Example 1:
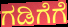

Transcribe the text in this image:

ಗಡಿಗೆಗೆ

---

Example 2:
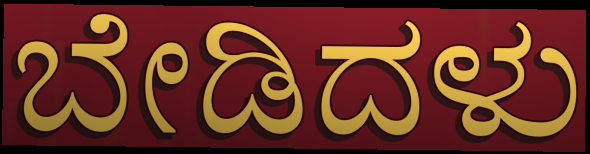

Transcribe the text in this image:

ಬೇಡಿದಳು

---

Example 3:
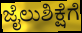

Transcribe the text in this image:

ಜೈಲುಶಿಕ್ಷೆಗೆ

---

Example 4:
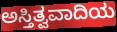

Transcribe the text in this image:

ಅಸ್ತಿತ್ವವಾದಿಯ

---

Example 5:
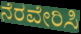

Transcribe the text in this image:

ನೆರವೇರಿಸಿ